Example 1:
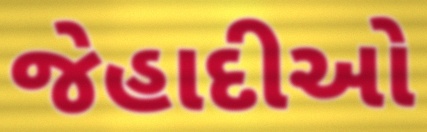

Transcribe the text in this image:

જેહાદીઓ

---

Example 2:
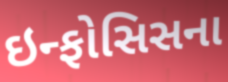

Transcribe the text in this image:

ઇન્ફોસિસના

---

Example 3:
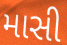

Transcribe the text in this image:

માસી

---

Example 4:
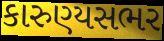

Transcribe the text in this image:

કારુણ્યસભર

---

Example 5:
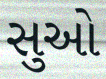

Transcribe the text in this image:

સુઓ